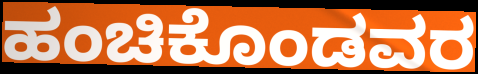
ಹಂಚಿಕೊಂಡವರ